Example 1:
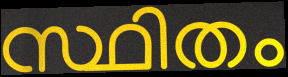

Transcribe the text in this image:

സ്ഥിതം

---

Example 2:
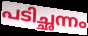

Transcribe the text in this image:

പടിച്ഛന്നം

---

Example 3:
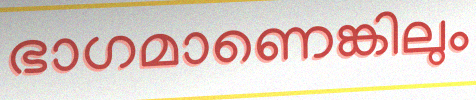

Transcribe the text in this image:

ഭാഗമാണെങ്കിലും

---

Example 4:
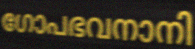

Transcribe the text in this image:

ഗോപഭവനാനി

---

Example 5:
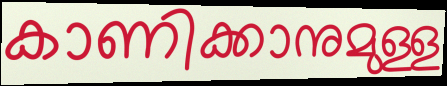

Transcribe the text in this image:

കാണിക്കാനുമുള്ള